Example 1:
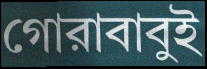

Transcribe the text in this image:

গোরাবাবুই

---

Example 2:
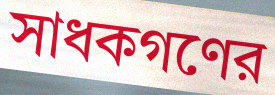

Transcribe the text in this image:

সাধকগণের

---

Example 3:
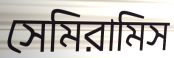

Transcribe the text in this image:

সেমিরামিস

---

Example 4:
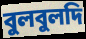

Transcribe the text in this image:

বুলবুলদি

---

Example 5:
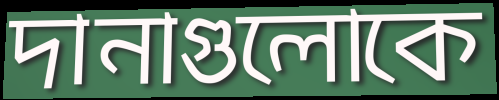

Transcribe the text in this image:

দানাগুলোকে